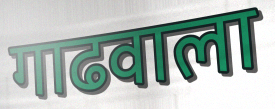
गाढवाला